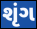
શૃંગ